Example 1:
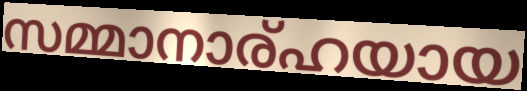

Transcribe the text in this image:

സമ്മാനാര്ഹയായ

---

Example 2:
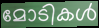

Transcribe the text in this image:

മോടികൾ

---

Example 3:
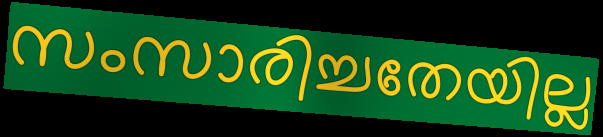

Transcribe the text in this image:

സംസാരിച്ചതേയില്ല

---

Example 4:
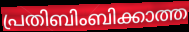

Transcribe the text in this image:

പ്രതിബിംബിക്കാത്ത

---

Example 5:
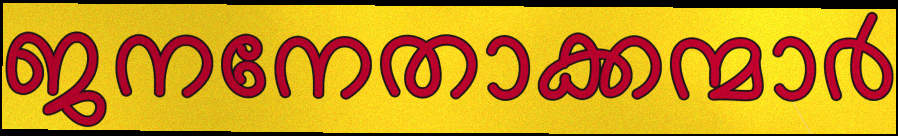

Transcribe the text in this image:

ജനനേതാക്കന്മാർ